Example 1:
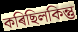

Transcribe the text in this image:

কৰিছিলকিন্তু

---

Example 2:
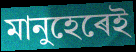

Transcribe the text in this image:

মানুহেৰেই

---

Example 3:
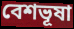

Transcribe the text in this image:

বেশভূষা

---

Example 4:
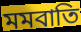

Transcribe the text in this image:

মমবাতি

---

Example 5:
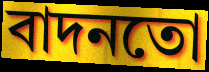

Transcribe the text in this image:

বাদনতো